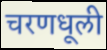
चरणधूली